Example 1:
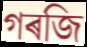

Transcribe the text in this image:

গৰজি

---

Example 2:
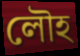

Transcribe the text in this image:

লৌহ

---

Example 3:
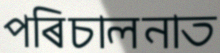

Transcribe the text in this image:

পৰিচালনাত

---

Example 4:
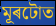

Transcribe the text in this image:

মূৰটোত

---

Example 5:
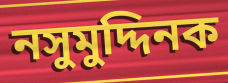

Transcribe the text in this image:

নসুমুদ্দিনক